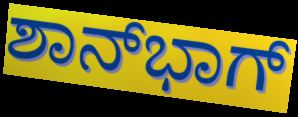
ಶಾನ್‍ಭಾಗ್